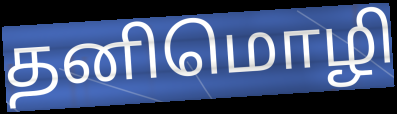
தனிமொழி